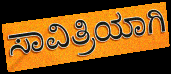
ಸಾವಿತ್ರಿಯಾಗಿ